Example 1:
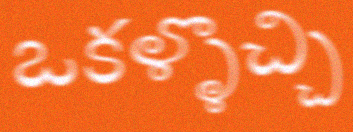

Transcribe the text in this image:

ఒకళ్ళొచ్చి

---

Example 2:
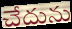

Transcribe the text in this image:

చేదును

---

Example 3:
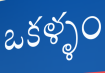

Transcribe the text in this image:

ఒకళ్ళం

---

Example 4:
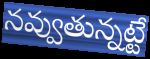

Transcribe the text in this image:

నవ్వుతున్నట్టే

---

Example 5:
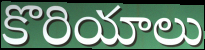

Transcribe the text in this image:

కొరియాలు